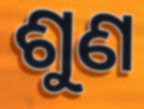
ଶୁଣ